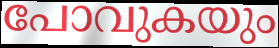
പോവുകയും